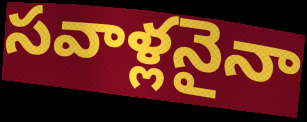
సవాళ్లనైనా